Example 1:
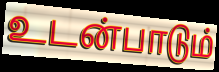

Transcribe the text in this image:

உடன்பாடும்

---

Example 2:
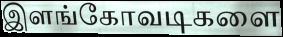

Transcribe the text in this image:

இளங்கோவடிகளை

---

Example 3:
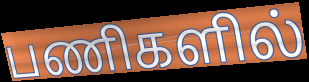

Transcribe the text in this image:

பணிகளில்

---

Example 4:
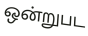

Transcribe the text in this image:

ஒன்றுபட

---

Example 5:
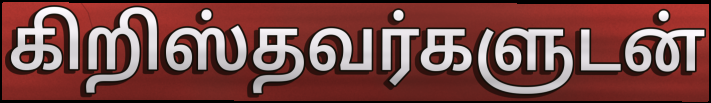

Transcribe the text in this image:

கிறிஸ்தவர்களுடன்